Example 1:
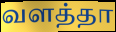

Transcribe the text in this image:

வளத்தா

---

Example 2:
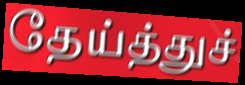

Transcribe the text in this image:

தேய்த்துச்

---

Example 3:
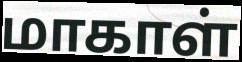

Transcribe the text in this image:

மாகாள்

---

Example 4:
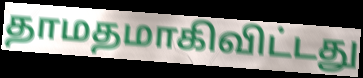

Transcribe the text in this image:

தாமதமாகிவிட்டது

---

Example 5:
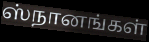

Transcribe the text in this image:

ஸ்நானங்கள்